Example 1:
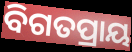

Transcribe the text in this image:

ବିଗତପ୍ରାୟ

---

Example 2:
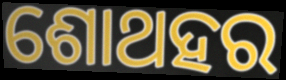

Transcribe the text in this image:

ଶୋଥହର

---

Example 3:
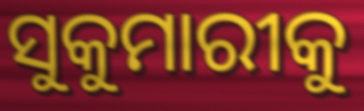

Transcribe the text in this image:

ସୁକୁମାରୀକୁ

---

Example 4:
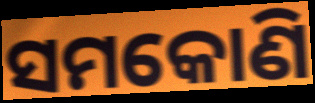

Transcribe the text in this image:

ସମକୋଣି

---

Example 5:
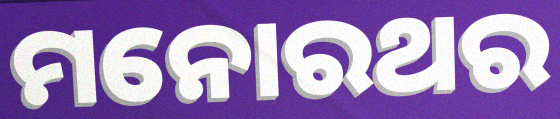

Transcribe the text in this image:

ମନୋରଥର